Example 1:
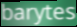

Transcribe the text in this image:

barytes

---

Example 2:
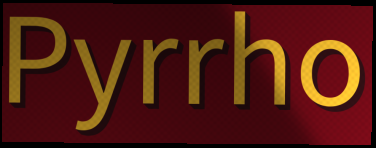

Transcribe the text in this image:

Pyrrho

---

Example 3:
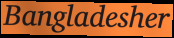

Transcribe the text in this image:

Bangladesher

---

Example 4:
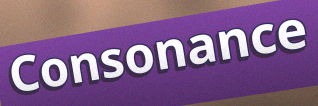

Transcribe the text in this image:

Consonance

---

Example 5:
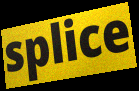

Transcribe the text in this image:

splice